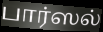
பார்ஸல்